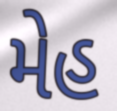
મેહ